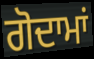
ਗੋਦਾਮਾਂ